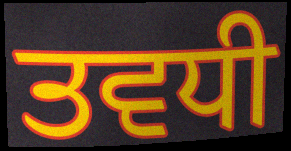
ਤਵਧੀ